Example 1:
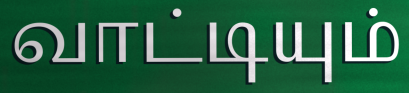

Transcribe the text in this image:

வாட்டியும்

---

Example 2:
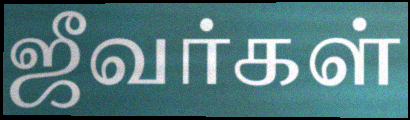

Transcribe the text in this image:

ஜீவர்கள்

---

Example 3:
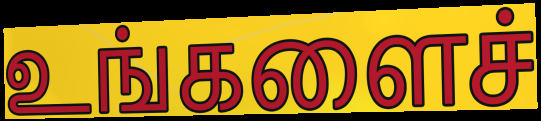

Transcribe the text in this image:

உங்களைச்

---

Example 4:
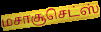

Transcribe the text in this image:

மசாசூசெட்ஸ்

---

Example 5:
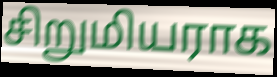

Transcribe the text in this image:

சிறுமியராக